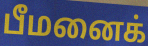
பீமனைக்